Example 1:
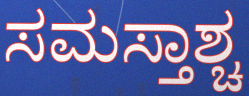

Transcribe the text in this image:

ಸಮಸ್ತಾಶ್ಚ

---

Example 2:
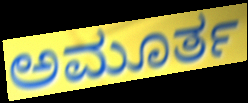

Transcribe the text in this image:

ಅಮೂರ್ತ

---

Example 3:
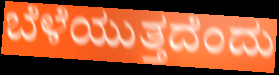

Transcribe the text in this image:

ಬೆಳೆಯುತ್ತದೆಂದು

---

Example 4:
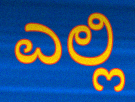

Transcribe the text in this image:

ಎಲ್ಲಿ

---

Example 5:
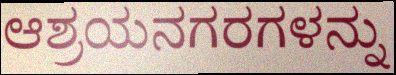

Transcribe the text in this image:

ಆಶ್ರಯನಗರಗಳನ್ನು